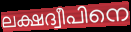
ലക്ഷദ്വീപിനെ